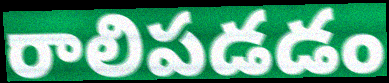
రాలిపడడం